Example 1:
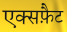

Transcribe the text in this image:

एक्सफ़ैट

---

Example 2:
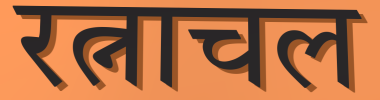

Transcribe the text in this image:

रत्नाचल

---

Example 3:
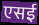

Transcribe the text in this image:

एसई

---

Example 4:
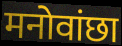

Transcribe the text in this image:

मनोवांछा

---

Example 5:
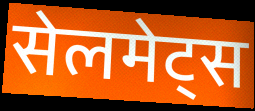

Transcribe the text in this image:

सेलमेट्स